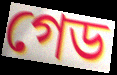
গেড